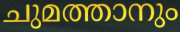
ചുമത്താനും